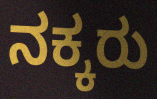
ನಕ್ಕರು